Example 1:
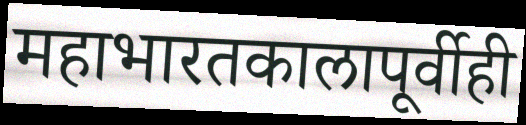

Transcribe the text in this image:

महाभारतकालापूर्वीही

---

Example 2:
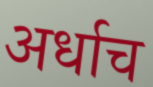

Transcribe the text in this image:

अर्धाच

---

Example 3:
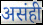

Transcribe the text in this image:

असंही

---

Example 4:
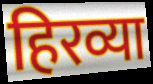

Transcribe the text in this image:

हिरव्या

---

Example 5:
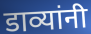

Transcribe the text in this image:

डाव्यांनी